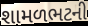
શામળભટની